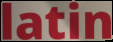
latin